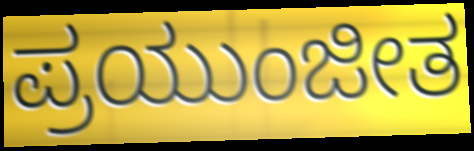
ಪ್ರಯುಂಜೀತ